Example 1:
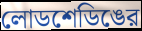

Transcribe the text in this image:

লোডশেডিঙের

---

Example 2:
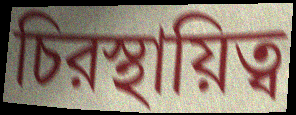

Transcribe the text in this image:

চিরস্থায়িত্ব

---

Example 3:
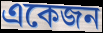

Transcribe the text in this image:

একেজন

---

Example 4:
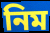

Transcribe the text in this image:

নিম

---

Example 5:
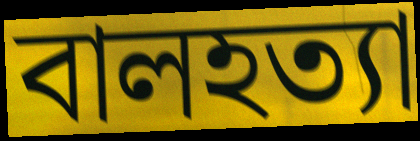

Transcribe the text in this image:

বালহত্যা